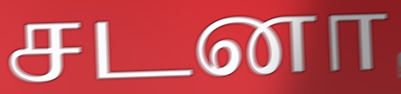
சடனா